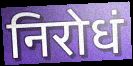
निरोधं